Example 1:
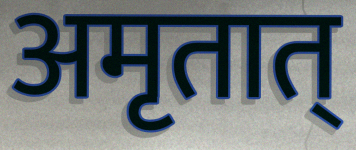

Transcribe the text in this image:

अमृतात्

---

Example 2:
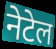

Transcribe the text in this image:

नेटेल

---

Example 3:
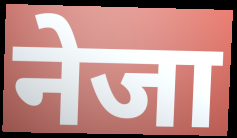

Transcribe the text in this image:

नेजा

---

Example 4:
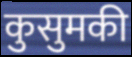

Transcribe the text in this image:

कुसुमकी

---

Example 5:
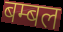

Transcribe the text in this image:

बम्बल